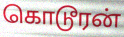
கொடூரன்